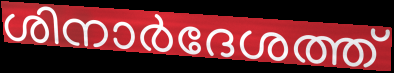
ശിനാർദേശത്ത്